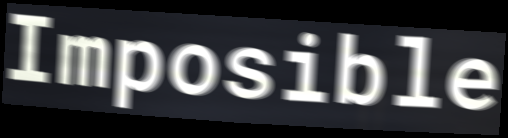
Imposible